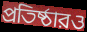
প্রতিষ্ঠারও